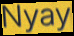
Nyay